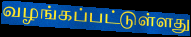
வழங்கப்பட்டுள்ளது